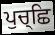
ਪੁਚ੍ਛਿ